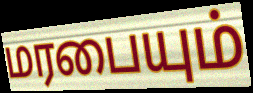
மரபையும்